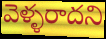
వెళ్ళరాదని